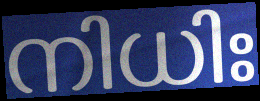
നിധിഃ